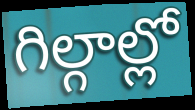
గిల్గాల్లో